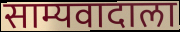
साम्यवादाला